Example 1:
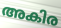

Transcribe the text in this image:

അകിര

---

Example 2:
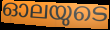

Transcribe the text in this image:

ഓലയുടെ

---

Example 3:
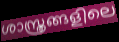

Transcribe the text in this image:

ശാസ്ത്രങ്ങളിലെ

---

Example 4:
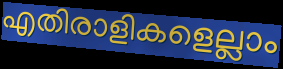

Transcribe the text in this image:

എതിരാളികളെല്ലാം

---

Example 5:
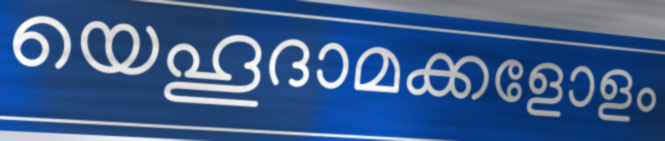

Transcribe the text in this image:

യെഹൂദാമക്കളോളം